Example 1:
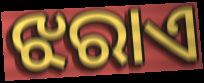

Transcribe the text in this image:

ଝରାଏ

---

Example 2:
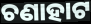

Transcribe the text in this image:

ଚଣାହାଟ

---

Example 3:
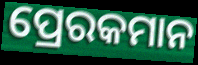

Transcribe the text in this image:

ପ୍ରେରକମାନ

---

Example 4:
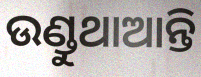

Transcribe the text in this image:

ଉଣ୍ଡୁଥାଆନ୍ତି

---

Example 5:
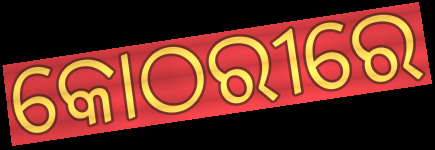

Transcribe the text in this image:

କୋଠରୀରେ